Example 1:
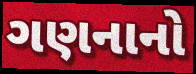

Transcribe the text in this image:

ગણનાનો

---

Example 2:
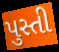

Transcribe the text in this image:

પુસ્તી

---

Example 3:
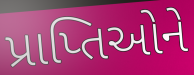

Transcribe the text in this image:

પ્રાપ્તિઓને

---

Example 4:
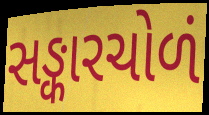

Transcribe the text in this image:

સઙ્કારચોળં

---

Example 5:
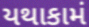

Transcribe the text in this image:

યથાકામં